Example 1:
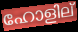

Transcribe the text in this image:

ഹോളില്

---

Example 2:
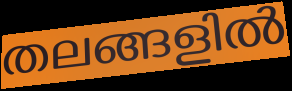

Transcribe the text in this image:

തലങ്ങളിൽ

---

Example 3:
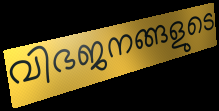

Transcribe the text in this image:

വിഭജനങ്ങളുടെ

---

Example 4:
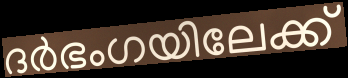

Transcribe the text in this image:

ദർഭംഗയിലേക്ക്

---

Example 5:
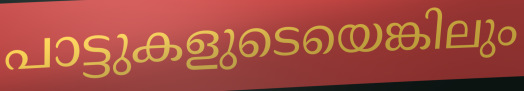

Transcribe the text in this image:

പാട്ടുകളുടെയെങ്കിലും